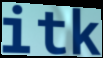
itk